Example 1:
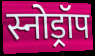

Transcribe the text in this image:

स्नोड्रॉप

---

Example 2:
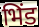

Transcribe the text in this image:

भिंड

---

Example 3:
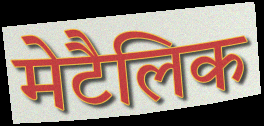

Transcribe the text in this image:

मेटैलिक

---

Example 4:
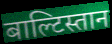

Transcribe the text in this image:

बाल्टिस्तान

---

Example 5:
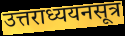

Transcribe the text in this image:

उत्तराध्ययनसूत्र